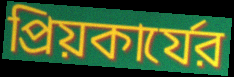
প্রিয়কার্যের